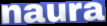
naura